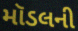
મૉડલની